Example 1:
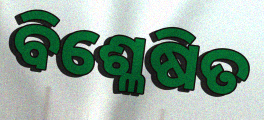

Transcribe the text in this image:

ବିଶ୍ଳେଷିତ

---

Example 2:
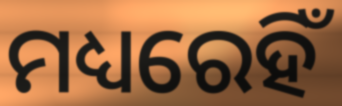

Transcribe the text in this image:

ମଧ୍ୟରେହିଁ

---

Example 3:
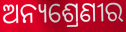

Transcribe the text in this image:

ଅନ୍ୟଶ୍ରେଣୀର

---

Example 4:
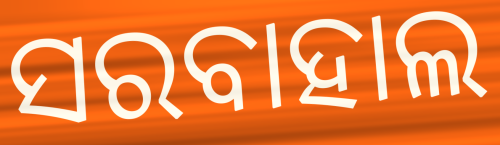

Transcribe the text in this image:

ସରବାହାଲ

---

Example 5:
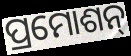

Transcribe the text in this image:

ପ୍ରମୋଶନ୍